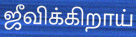
ஜீவிக்கிறாய்